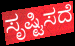
ಸೃಷ್ಟಿಸದೆ